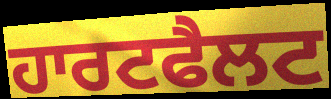
ਹਾਰਟਫੈਲਟ